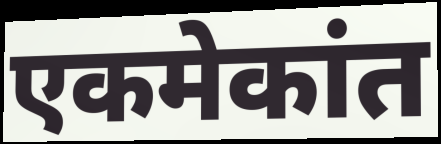
एकमेकांत